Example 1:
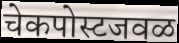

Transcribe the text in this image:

चेकपोस्टजवळ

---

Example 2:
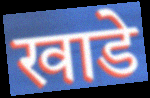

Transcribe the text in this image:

खाडे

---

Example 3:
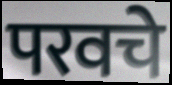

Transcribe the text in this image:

परवचे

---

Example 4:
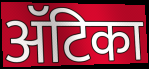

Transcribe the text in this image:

ॲटिका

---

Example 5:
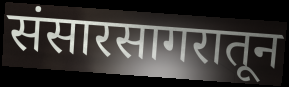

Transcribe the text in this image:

संसारसागरातून